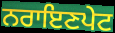
ਨਰਾਇਣਪੇਟ